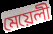
মেয়েলী